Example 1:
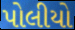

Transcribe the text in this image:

પોલીયો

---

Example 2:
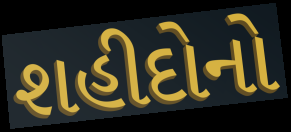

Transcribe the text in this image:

શહીદોનો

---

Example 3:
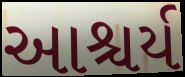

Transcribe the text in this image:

આશ્ચર્ય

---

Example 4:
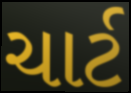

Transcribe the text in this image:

ચાર્ટ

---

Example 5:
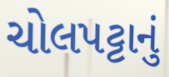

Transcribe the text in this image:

ચોલપટ્ટાનું